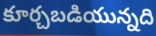
కూర్చబడియున్నది